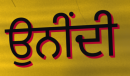
ਉਨੀਂਦੀ